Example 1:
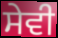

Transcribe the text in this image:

ਸੇਵੀ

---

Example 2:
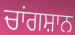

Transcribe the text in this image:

ਚਾਂਗਸ਼ਾਨ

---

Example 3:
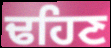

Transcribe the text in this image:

ਢਹਿਣ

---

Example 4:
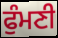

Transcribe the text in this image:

ਫੁੰਮਣੀ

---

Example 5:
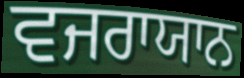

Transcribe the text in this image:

ਵਜਰਾਯਾਨ